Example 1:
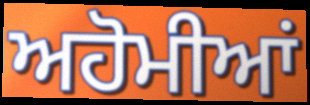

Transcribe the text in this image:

ਅਹੋਮੀਆਂ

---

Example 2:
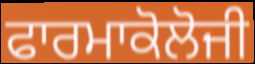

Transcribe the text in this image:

ਫਾਰਮਾਕੋਲੋਜੀ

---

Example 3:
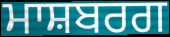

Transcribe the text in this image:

ਮਾਸ਼ਬਰਗ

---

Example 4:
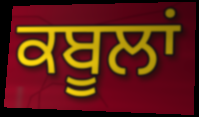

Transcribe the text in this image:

ਕਬੂਲਾਂ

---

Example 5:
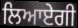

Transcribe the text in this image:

ਲਿਆਏਗੀ